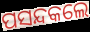
ପସନ୍ଦକଲେ